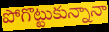
పోగొట్టుకున్నానా